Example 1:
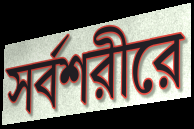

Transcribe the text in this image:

সর্বশরীরে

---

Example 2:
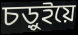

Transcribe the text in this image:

চড়ুইয়ে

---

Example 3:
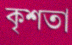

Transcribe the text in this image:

কৃশতা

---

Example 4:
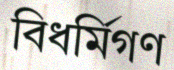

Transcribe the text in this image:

বিধর্মিগণ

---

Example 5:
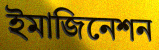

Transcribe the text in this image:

ইমাজিনেশন